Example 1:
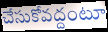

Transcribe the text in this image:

చేసుకోవద్దంటూ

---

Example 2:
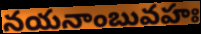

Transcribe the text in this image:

నయనాంబువహః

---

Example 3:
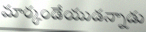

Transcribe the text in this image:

మార్కండేయుడన్నాడు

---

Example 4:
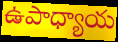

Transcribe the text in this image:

ఉపాధ్యాయ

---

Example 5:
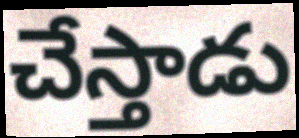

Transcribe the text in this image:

చేస్తాడు